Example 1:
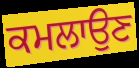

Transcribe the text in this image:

ਕਮਲਾਉਣ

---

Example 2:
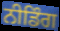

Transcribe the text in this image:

ਨੀਡਿੰਗ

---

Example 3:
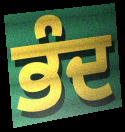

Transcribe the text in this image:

ਭੰਦ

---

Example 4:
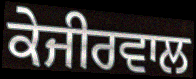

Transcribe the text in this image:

ਕੇਜੀਰਵਾਲ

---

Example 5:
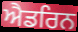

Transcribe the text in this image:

ਐਡਰਿਨ